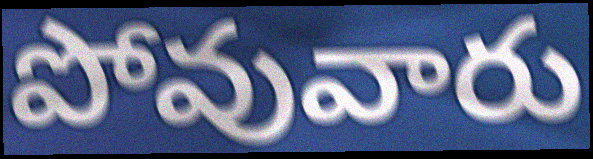
పోవువారు